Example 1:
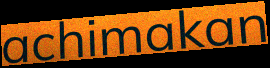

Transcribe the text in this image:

achimakan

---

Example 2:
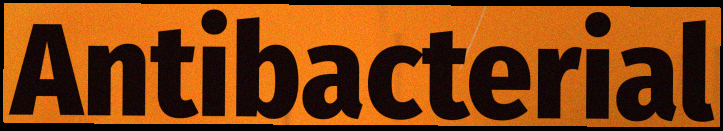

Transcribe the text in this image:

Antibacterial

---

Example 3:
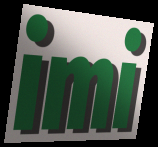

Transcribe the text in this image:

imi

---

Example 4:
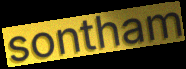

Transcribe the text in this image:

sontham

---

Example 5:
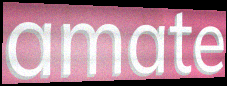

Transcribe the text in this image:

amate